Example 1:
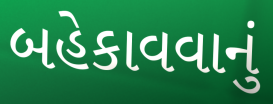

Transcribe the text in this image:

બહેકાવવાનું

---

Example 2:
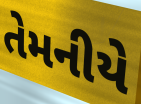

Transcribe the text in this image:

તેમનીયે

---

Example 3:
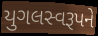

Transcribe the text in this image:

યુગલસ્વરૂપને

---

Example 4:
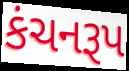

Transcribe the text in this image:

કંચનરૂપ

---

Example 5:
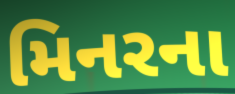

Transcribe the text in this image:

મિનરના